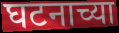
घटनाच्या